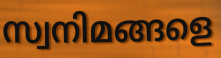
സ്വനിമങ്ങളെ